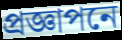
প্রজ্ঞাপনে